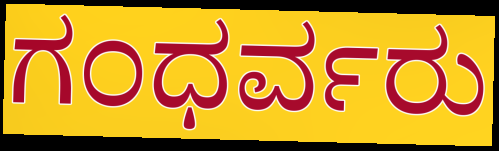
ಗಂಧರ್ವರು